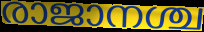
രാജാനശ്ച